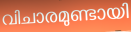
വിചാരമുണ്ടായി